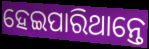
ହେଇପାରିଥାନ୍ତେ